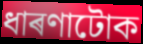
ধাৰণাটোক